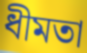
ধীমতা